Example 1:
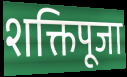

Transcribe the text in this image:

शक्तिपूजा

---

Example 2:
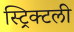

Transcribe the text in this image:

स्ट्रिक्टली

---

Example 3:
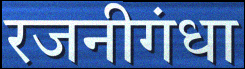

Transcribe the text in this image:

रजनीगंधा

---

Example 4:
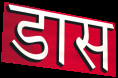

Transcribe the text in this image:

डास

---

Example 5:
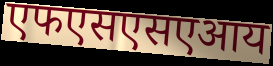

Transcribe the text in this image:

एफएसएसएआय